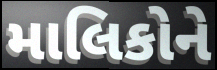
માલિકોને